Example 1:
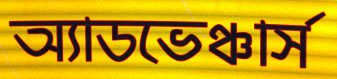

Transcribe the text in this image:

অ্যাডভেঞ্চার্স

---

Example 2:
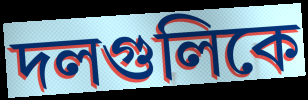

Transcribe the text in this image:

দলগুলিকে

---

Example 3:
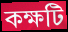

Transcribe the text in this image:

কক্ষটি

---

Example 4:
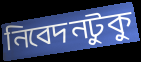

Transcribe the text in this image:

নিবেদনটুকু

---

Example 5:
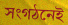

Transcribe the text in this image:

সংগঠনেই